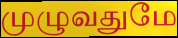
முழுவதுமே